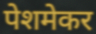
पेशमेकर